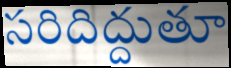
సరిదిద్దుతూ